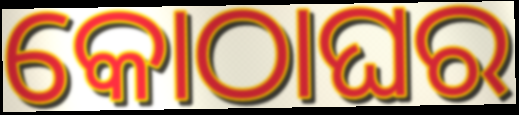
କୋଠାଘର